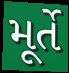
મૂર્તે